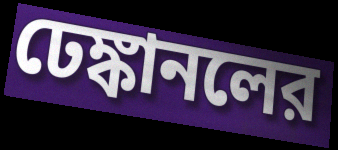
ঢেঙ্কানলের